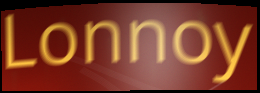
Lonnoy